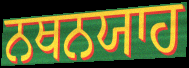
ਨਥਨਯਾਹ